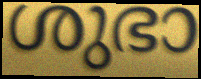
ശുഭാ